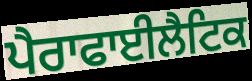
ਪੈਰਾਫਾਈਲੈਟਿਕ